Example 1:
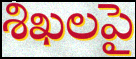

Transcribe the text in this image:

శిఖలపై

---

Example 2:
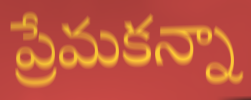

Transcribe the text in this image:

ప్రేమకన్నా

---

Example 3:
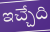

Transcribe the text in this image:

ఇచ్చేది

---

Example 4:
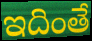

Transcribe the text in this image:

ఇదింతే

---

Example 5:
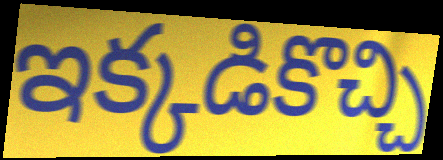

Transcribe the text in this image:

ఇక్కడికొచ్చి